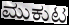
ಮುಕುಟ